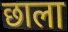
छाला